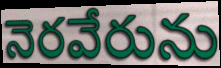
నెరవేరును